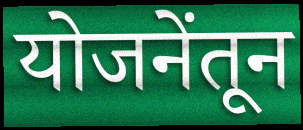
योजनेंतून